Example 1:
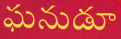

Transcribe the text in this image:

ఘనుడూ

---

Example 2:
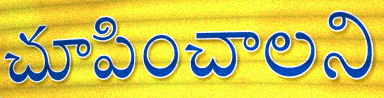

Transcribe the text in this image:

చూపించాలని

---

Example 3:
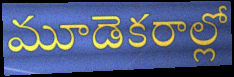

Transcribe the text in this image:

మూడెకరాల్లో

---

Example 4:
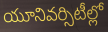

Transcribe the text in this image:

యూనివర్సిటీల్లో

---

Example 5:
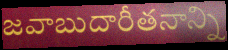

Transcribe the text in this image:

జవాబుదారీతనాన్ని